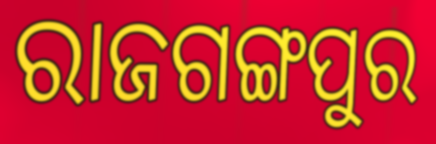
ରାଜଗଙ୍ଗପୁର